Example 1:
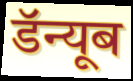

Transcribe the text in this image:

डॅन्यूब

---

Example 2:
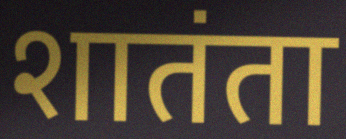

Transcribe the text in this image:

शातंता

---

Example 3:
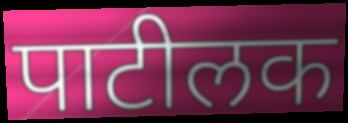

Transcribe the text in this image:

पाटीलक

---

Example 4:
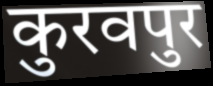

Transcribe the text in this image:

कुरवपुर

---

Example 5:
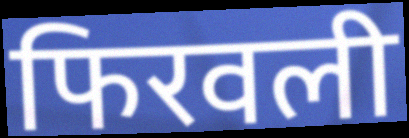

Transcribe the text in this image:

फिरवली